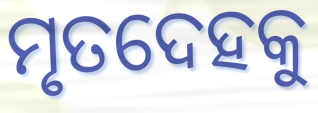
ମୃତଦେହକୁ